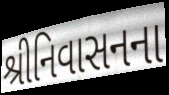
શ્રીનિવાસનના